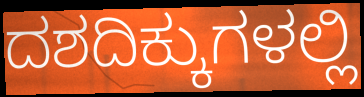
ದಶದಿಕ್ಕುಗಳಲ್ಲಿ